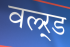
वल्र्ड